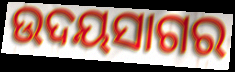
ଉଦୟସାଗର